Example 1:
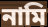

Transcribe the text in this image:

নামি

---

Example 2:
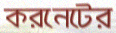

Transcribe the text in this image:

করনেটের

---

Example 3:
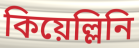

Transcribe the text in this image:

কিয়েল্লিনি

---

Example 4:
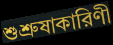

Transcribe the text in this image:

শুশ্রুষাকারিণী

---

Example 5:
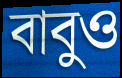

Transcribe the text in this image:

বাবুও